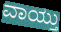
ವಾಯ್ತು